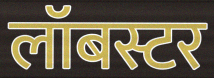
लॉबस्टर